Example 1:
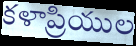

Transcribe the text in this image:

కళాప్రియుల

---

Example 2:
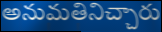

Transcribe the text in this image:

అనుమతినిచ్చారు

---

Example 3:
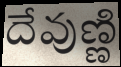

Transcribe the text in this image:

దేవుణ్ణి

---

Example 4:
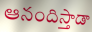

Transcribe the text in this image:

ఆనందిస్తాడా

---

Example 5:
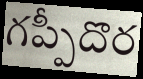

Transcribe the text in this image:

గప్పీదొర